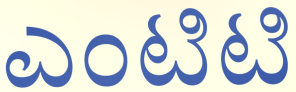
ಎಂಟಿಟಿ